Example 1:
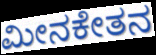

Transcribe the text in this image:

ಮೀನಕೇತನ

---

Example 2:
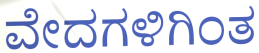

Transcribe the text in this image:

ವೇದಗಳಿಗಿಂತ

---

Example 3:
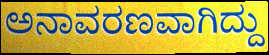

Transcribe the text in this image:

ಅನಾವರಣವಾಗಿದ್ದು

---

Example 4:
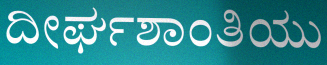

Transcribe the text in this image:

ದೀರ್ಘಶಾಂತಿಯು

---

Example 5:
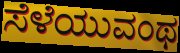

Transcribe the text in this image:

ಸೆಳೆಯುವಂಥ